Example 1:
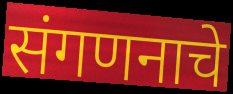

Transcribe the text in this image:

संगणनाचे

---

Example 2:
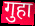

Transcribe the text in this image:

गुहा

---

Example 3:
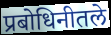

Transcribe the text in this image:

प्रबोधिनीतले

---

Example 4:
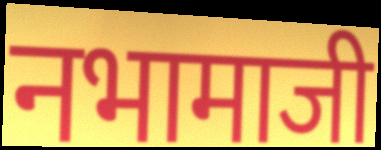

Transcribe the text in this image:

नभामाजी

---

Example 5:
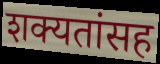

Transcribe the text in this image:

शक्यतांसह